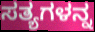
ಸತ್ಯಗಳನ್ನ